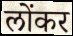
लोंकर